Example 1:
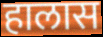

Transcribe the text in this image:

हालास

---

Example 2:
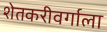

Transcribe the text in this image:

शेतकरीवर्गाला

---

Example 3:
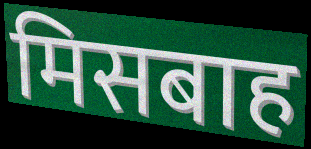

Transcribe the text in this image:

मिसबाह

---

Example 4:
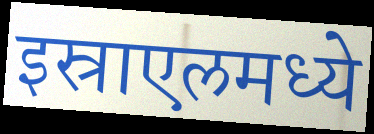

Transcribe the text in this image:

इस्राएलमध्ये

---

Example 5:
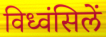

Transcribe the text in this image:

विध्वंसिलें